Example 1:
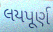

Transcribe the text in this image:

લયપૂર્ણ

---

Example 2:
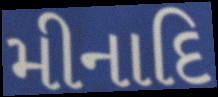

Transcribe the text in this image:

મીનાદિ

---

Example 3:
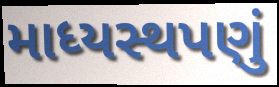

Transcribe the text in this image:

માધ્યસ્થપણું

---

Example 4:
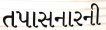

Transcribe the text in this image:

તપાસનારની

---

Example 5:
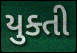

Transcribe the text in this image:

યુક્તી